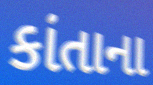
કાંતાના